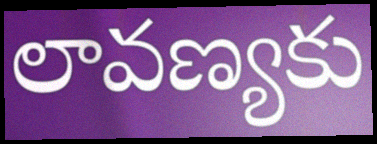
లావణ్యకు